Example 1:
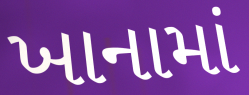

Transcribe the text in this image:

ખાનામાં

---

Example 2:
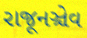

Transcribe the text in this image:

રાજૂનઞ્ચેવ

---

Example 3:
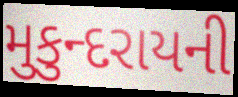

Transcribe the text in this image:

મુકુન્દરાયની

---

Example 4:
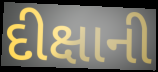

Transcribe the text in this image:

દીક્ષાની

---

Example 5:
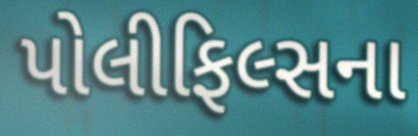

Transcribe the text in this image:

પોલીફિલ્સના